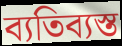
ব্যতিব্যস্ত